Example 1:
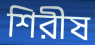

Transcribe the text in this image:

শিরীষ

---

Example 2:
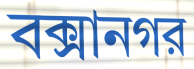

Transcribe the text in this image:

বক্সানগর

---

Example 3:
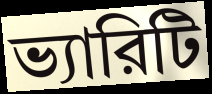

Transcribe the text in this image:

ভ্যারিটি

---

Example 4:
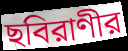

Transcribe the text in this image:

ছবিরাণীর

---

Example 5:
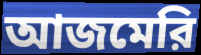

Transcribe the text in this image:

আজমেরি